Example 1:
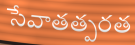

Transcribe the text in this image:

సేవాతత్పరత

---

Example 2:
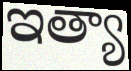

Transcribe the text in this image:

ఇత్యా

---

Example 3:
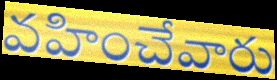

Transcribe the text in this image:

వహించేవారు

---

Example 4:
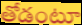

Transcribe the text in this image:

తోడంటూ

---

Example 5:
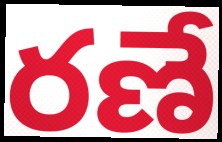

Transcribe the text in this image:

రణే